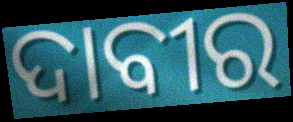
ଦାବୀର